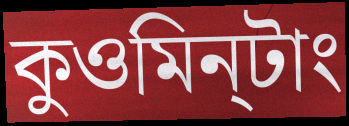
কুওমিন্‌টাং